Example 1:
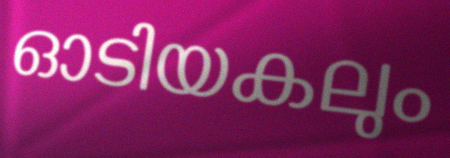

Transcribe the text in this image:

ഓടിയകലും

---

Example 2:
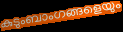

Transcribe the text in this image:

കുടുംബാംഗങ്ങളെയും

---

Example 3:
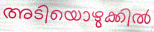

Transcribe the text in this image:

അടിയൊഴുക്കിൽ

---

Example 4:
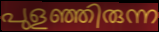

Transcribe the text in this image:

പുളഞ്ഞിരുന്ന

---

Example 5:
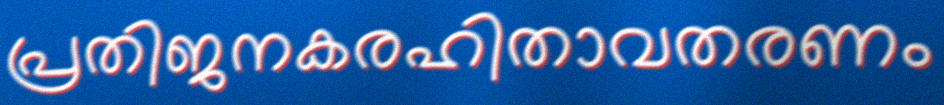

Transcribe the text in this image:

പ്രതിജനകരഹിതാവതരണം